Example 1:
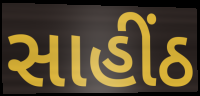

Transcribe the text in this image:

સાહીંઠ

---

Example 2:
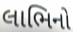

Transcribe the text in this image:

લાભિનો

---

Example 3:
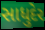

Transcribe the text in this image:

સાધુદેર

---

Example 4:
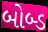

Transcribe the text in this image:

બોબ્ડ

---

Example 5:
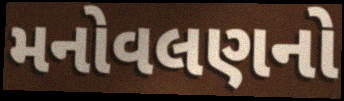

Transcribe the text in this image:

મનોવલણનો